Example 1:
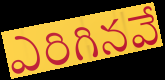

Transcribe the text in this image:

ఎరిగినవే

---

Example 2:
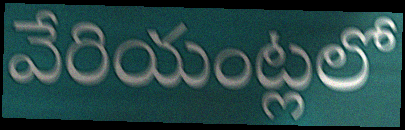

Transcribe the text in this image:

వేరియంట్లలో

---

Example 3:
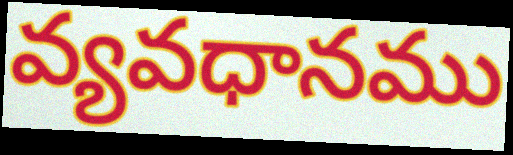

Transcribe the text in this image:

వ్యవధానము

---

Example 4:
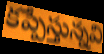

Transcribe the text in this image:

కప్పేస్తున్నవి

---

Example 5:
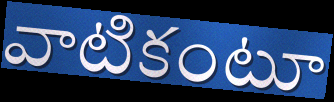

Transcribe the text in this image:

వాటికంటూ